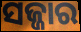
ସଜ୍ଜାର